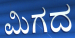
ಮಿಗದ